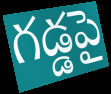
గడ్డపై